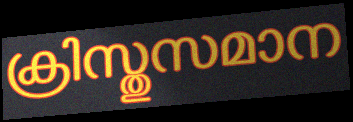
ക്രിസ്തുസമാന